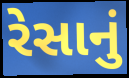
રેસાનું